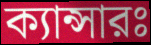
ক্যান্সারঃ